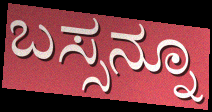
ಬಸ್ಸನ್ನೂ